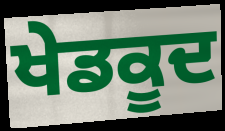
ਖੇਡਕੂਦ